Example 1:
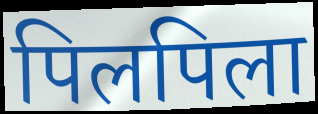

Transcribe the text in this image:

पिलपिला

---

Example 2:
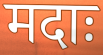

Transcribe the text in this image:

मदाः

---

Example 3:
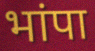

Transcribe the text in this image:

भांपा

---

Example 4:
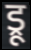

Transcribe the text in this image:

ड्रू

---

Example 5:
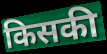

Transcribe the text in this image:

किसकी